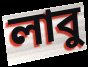
লাবু